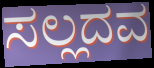
ಸಲ್ಲದವ